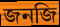
জনজি